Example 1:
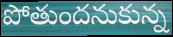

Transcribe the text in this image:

పోతుందనుకున్న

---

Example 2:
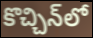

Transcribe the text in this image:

కొచ్చిన్‌లో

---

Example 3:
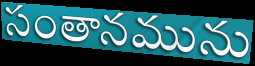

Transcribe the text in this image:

సంతానమును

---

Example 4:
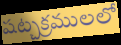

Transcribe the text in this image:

షట్చక్రములలో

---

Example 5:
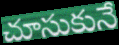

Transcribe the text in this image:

చూసుకునే